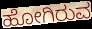
ಹೋಗಿರುವ